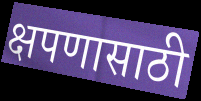
क्षपणासाठी